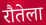
रौतेला